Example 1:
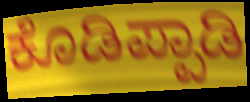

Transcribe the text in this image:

ಕೊಡಿಪ್ಪಾಡಿ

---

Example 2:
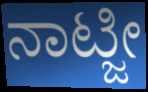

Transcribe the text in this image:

ನಾಟ್ಜೀ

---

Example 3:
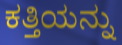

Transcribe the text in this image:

ಕತ್ತಿಯನ್ನು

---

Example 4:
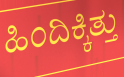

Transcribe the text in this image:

ಹಿಂದಿಕ್ಕಿತ್ತು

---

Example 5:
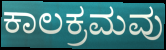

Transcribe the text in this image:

ಕಾಲಕ್ರಮವು